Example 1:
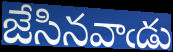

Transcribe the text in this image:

జేసినవాఁడు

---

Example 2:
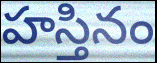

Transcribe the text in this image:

హస్తినం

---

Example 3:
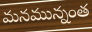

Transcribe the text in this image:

మనమున్నంత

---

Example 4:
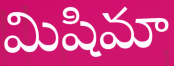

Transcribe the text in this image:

మిషిమా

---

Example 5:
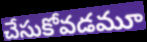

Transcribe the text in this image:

చేసుకోవడమూ